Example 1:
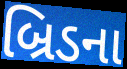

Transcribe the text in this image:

બ્રિડના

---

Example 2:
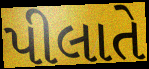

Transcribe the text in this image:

પીલાતે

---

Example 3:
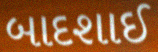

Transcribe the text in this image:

બાદશાઈ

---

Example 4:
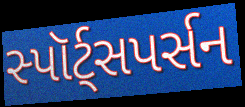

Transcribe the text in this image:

સ્પૉર્ટ્સપર્સન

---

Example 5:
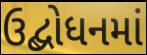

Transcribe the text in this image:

ઉદ્બોધનમાં